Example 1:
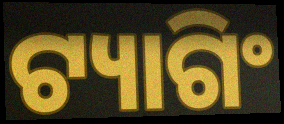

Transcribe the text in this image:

ଟ୍ୟାଗିଂ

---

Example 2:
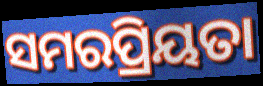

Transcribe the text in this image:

ସମରପ୍ରିୟତା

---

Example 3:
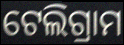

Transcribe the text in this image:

ଟେଲିଗ୍ରାମ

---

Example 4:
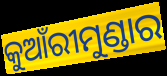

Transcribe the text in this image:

କୁଆଁରୀମୁଣ୍ଡାର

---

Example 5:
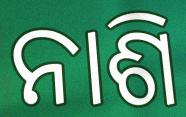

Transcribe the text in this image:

ନାଶି